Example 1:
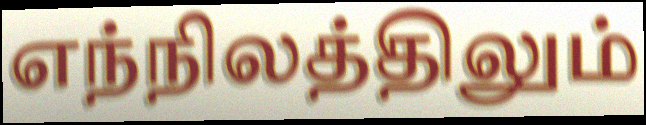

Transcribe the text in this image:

எந்நிலத்திலும்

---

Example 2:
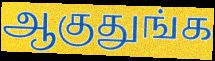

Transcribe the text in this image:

ஆகுதுங்க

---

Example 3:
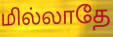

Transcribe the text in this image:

மில்லாதே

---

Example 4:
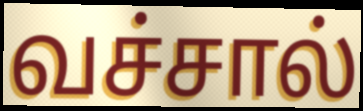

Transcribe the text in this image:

வச்சால்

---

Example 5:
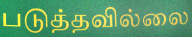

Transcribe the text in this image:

படுத்தவில்லை